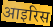
आइरिस